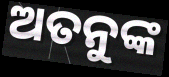
ଅତନୁଙ୍କ